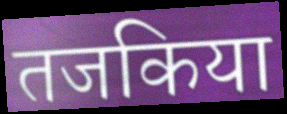
तजकिया